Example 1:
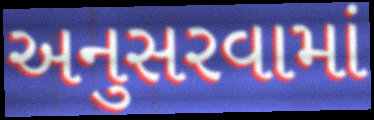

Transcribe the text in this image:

અનુસરવામાં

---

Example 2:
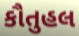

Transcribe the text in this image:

કૌતુહલ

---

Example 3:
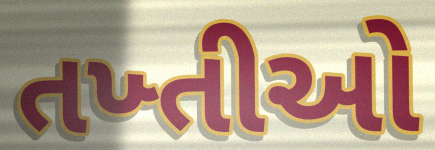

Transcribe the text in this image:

તખ્તીઓ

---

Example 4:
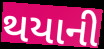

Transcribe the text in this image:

થયાની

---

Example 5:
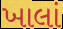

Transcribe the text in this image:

ખાલાં